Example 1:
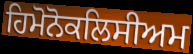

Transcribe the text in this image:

ਹਿਮੋਨੋਕਲਿਸੀਅਮ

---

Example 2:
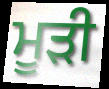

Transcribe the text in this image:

ਮੂੜੀ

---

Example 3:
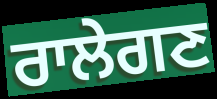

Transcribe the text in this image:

ਰਾਲੇਗਣ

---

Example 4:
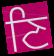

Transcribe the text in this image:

ਣਿ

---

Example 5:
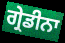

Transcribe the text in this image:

ਗ੍ਰੇਡੀਨਾ